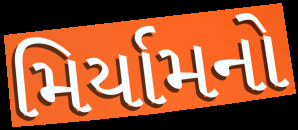
મિર્યામનો